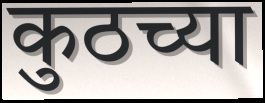
कुठच्या